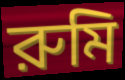
ৰুমি